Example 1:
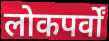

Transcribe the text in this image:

लोकपर्वों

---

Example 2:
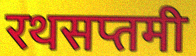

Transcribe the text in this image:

रथसप्तमी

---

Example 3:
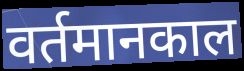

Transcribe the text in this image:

वर्तमानकाल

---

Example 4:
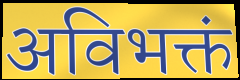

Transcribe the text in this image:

अविभक्तं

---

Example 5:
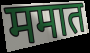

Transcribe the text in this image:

ममात